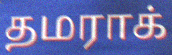
தமராக்